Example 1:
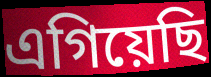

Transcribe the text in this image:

এগিয়েছি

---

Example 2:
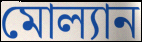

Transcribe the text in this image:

মোল্যান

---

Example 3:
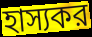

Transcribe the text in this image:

হাস্যকর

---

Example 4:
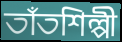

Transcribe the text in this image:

তাঁতশিল্পী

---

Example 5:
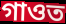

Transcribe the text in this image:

গাওত